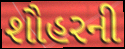
શૌહરની